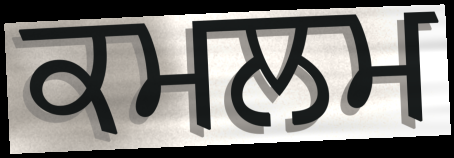
ਕਮਲਮ